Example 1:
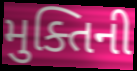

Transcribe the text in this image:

મુક્તિની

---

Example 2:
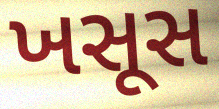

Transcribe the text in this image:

ખસૂસ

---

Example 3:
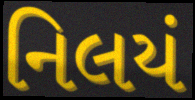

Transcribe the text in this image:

નિલયં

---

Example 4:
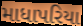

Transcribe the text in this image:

માધાપરિયા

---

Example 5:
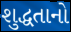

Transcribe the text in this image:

શુદ્ધતાનો